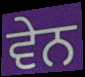
ਵੇਨ